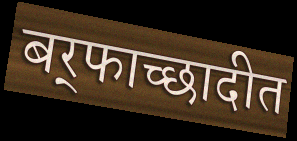
बर्फाच्छादीत